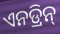
ଏନଡ୍ରିନ୍